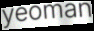
yeoman